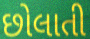
છોલાતી